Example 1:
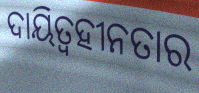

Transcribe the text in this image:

ଦାୟିତ୍ଵହୀନତାର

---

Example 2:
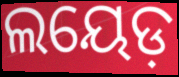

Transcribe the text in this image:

ଲୟେଡ଼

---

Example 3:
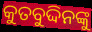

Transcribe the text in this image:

କୁତବୁଦ୍ଦିନଙ୍କୁ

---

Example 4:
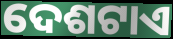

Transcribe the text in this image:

ଦେଶଟାଏ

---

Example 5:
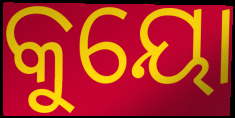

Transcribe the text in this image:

କୁୟୋ